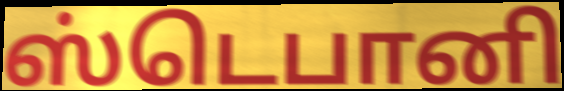
ஸ்டெபானி